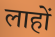
लाहों